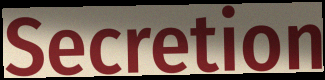
Secretion